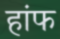
हांफ